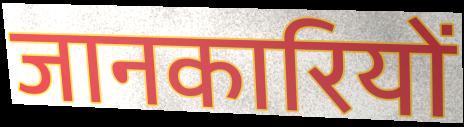
जानकारियों